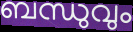
ബന്ധുവും